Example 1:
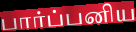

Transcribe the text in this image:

பார்ப்பனிய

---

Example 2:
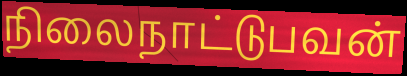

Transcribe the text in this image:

நிலைநாட்டுபவன்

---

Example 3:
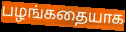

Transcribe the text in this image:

பழங்கதையாக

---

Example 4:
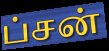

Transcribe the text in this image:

ப்சன்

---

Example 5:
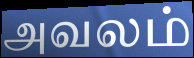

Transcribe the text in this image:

அவலம்